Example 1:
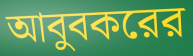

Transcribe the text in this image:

আবুবকরের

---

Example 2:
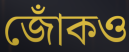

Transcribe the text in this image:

জোঁকও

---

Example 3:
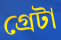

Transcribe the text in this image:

গ্রেটা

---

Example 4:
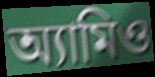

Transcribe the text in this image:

অ্যামিও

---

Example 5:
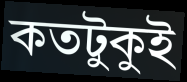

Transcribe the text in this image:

কতটুকুই